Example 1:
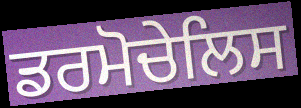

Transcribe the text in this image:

ਡਰਮੋਚੇਲਿਸ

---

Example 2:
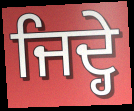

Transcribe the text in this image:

ਜਿਦ੍ਹੇ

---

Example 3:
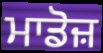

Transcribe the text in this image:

ਮਾਡੋਜ਼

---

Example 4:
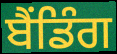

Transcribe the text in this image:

ਬੈਂਡਿੰਗ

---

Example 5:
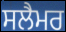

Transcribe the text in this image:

ਸਲੈਮਰ